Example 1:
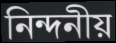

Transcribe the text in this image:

নিন্দনীয়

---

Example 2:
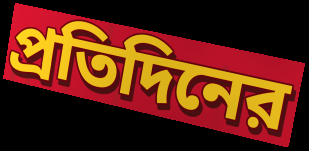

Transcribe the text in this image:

প্রতিদিনের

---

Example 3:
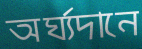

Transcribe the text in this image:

অর্ঘ্যদানে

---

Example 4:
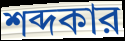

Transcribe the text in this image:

শব্দকার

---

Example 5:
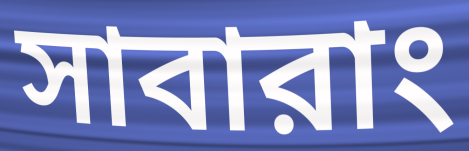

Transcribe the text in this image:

সাবারাং